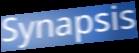
Synapsis